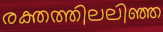
രക്തത്തിലലിഞ്ഞ